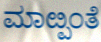
ಮಾೞ್ಪಂತೆ